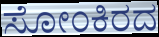
ಸೋಂಕಿರದ